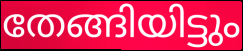
തേങ്ങിയിട്ടും